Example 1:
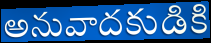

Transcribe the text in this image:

అనువాదకుడికి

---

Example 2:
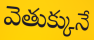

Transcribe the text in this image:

వెతుక్కునే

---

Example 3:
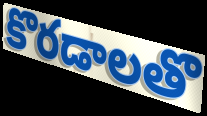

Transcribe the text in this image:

కొరడాలతొ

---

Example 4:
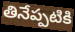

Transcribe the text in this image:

తినేప్పటికి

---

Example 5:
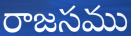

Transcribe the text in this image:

రాజసము